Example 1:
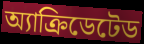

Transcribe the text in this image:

অ্যাক্রিডেটেড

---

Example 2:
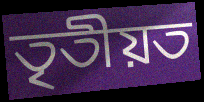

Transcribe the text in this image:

তৃতীয়ত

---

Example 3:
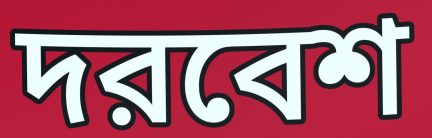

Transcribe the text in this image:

দরবেশ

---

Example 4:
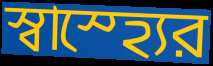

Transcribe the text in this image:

স্বাস্হ্যের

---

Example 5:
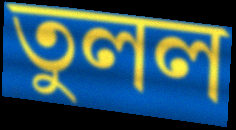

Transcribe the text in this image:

তুলল